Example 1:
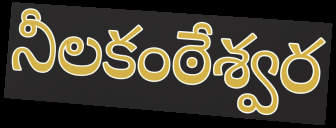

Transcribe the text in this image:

నీలకంఠేశ్వర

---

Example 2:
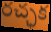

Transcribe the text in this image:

రచ్ఛక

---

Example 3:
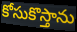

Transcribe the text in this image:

కోసుకొస్తాను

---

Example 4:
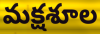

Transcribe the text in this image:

మక్షశూల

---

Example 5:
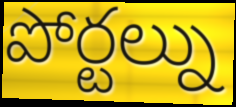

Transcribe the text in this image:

పోర్టల్ను